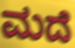
ಮದೆ